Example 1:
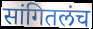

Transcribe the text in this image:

सांगितलंच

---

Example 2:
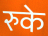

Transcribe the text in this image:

रुके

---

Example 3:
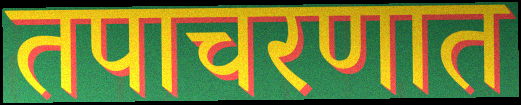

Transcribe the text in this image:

तपाचरणात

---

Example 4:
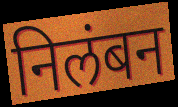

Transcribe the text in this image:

निलंबन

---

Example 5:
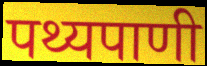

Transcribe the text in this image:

पथ्यपाणी